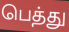
பெத்து